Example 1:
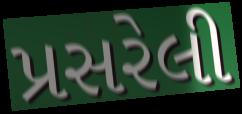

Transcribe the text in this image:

પ્રસરેલી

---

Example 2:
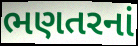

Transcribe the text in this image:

ભણતરનાં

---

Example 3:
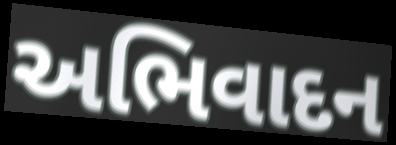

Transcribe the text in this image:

અભિવાદન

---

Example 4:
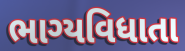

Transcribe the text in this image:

ભાગ્યવિધાતા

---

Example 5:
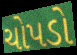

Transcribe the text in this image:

ચોપડો